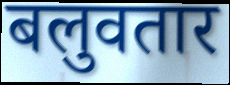
बलुवतार